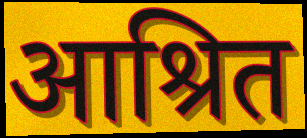
आश्रित